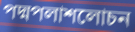
পদ্মপলাশলোচন